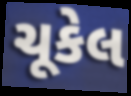
ચૂકેલ